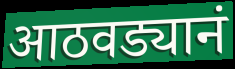
आठवड्यानं